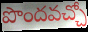
పొందవచ్చో